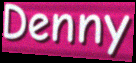
Denny